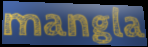
mangla